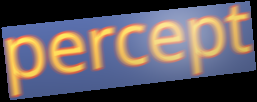
percept